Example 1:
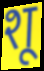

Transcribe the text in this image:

शू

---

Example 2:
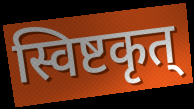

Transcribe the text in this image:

स्विष्टकृत्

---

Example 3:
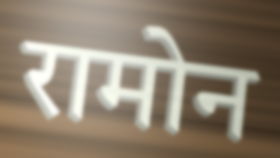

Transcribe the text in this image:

रामोन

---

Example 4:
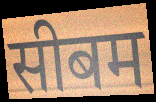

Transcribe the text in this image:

सीबम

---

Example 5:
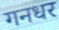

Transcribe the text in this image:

गनधर